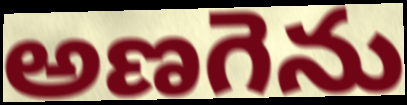
అణగెను